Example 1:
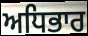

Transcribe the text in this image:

ਅਧਿਭਾਰ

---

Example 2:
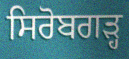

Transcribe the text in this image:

ਸਿਰੋਬਗੜ੍ਹ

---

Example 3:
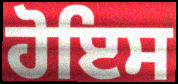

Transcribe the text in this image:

ਹੋਇਸ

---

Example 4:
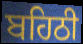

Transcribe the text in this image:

ਬਹਿਠੀ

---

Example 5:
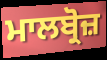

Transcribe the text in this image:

ਮਾਲਬ੍ਰੋਜ਼